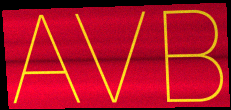
AVB